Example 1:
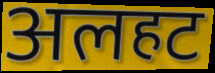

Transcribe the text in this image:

अलहट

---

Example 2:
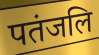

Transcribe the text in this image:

पतंजलि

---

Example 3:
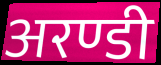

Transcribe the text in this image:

अरण्डी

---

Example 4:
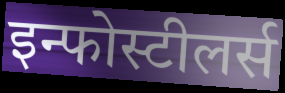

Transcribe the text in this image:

इन्फोस्टीलर्स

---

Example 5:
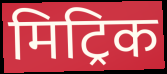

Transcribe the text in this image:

मिट्रिक